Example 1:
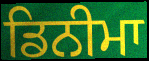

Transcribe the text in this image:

ਡਿਨੀਮਾ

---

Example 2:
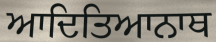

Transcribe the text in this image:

ਆਦਿਤਿਆਨਾਥ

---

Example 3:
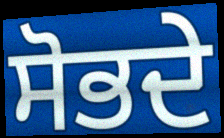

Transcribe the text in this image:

ਸੋਭਦੇ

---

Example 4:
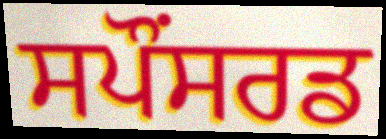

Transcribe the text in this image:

ਸਪੌਂਸਰਡ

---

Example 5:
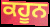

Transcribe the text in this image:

ਕਹੂਨ